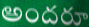
అందరూ